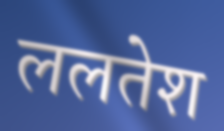
ललतेश